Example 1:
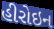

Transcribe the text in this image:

હીરોઇન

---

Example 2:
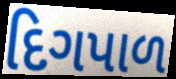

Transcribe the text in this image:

દિગપાળ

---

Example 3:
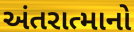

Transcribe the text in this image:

અંતરાત્માનો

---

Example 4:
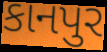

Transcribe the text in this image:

કાનપુર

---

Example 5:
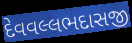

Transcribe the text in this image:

દેવવલ્લભદાસજી